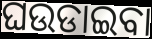
ଘଉଡାଇବା